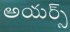
అయర్స్